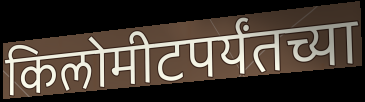
किलोमीटपर्यंतच्या